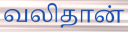
வலிதான்